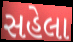
સહેલા